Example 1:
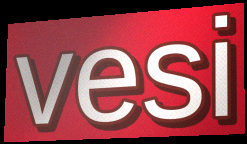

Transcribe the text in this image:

vesi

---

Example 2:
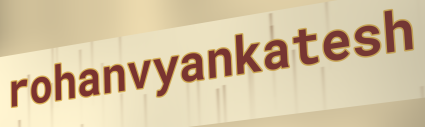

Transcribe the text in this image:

rohanvyankatesh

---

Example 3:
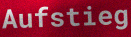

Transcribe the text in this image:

Aufstieg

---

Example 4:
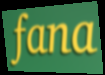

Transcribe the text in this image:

fana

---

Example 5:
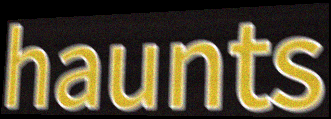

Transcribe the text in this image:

haunts